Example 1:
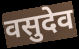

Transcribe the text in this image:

वसुदेव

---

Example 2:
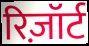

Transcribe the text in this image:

रिज़ॉर्ट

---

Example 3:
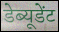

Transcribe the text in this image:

डेब्यूडेंट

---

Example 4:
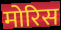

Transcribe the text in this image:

मोरिस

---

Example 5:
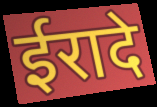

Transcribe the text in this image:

ईरादे